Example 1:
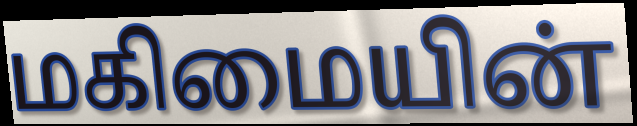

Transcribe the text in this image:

மகிமையின்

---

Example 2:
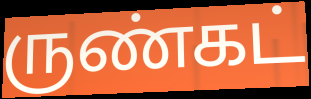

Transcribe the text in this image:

ருண்கட்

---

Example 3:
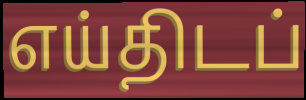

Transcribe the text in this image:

எய்திடப்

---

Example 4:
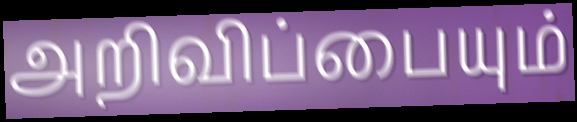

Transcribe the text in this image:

அறிவிப்பையும்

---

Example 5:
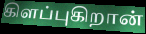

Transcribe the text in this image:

கிளப்புகிறான்